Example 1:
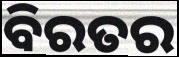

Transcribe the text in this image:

ବିରତର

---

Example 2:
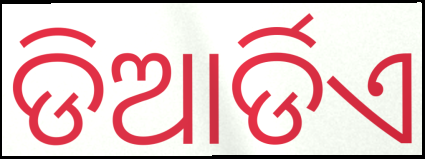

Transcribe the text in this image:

ଡିଆର୍ଡିଏ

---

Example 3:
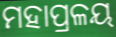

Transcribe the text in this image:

ମହାପ୍ରଳୟ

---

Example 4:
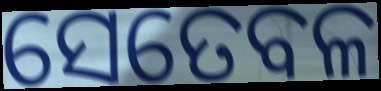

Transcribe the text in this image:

ସେତେବଳ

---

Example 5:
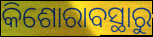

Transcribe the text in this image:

କିଶୋରାବସ୍ଥାରୁ